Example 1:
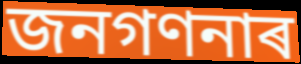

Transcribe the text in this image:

জনগণনাৰ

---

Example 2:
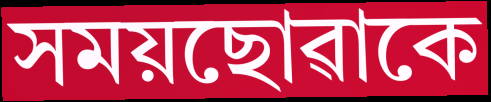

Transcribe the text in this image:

সময়ছোৱাকে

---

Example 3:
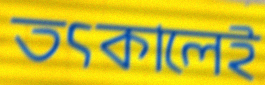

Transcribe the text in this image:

তৎকালেই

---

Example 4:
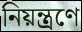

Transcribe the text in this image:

নিয়ন্ত্ৰণে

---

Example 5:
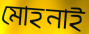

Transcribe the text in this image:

মোহনাই